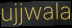
ujjwala